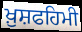
ਖ਼ੁਸ਼ਫਹਿਮੀ